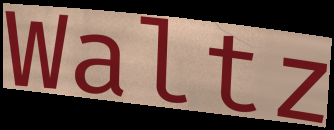
Waltz